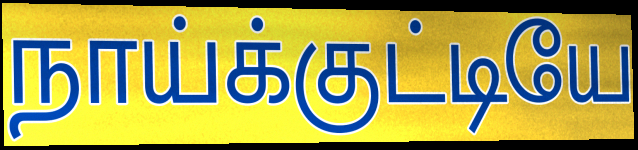
நாய்க்குட்டியே